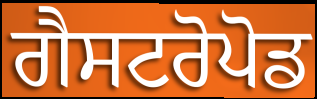
ਗੈਸਟਰੋਪੋਡ